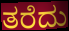
ತರೆದು